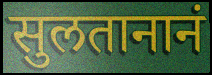
सुलतानानं